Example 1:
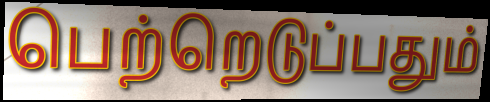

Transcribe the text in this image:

பெற்றெடுப்பதும்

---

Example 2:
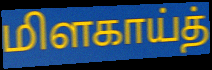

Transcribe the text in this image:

மிளகாய்த்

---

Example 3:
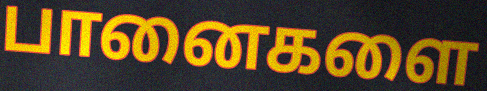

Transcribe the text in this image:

பானைகளை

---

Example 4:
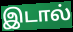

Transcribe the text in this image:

இடால்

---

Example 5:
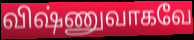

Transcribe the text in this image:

விஷ்ணுவாகவே